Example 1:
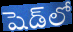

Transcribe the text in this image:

షెడ్‌లో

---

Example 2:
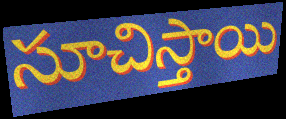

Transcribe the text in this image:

సూచిస్తాయి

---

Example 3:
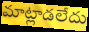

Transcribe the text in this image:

మాట్లాడలేదు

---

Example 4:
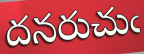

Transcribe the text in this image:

దనరుచుఁ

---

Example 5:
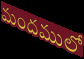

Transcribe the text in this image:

మందములో